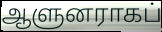
ஆளுனராகப்